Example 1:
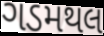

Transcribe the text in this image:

ગડમથલ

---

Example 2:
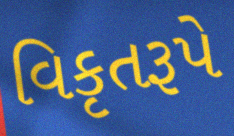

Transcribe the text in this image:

વિકૃતરૂપે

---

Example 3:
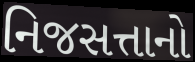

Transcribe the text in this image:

નિજસત્તાનો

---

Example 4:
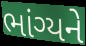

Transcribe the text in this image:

ભાંગ્યને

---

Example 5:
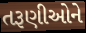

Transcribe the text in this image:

તરૂણીઓને